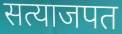
सत्याजपत